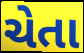
ચેતા